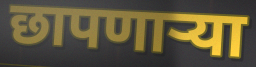
छापणाऱ्या